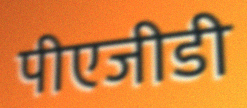
पीएजीडी